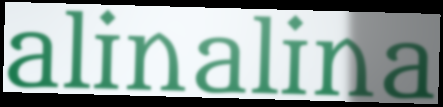
alinalina